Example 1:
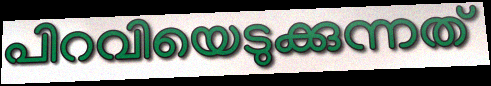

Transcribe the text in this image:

പിറവിയെടുക്കുന്നത്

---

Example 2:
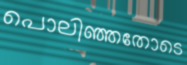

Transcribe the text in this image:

പൊലിഞ്ഞതോടെ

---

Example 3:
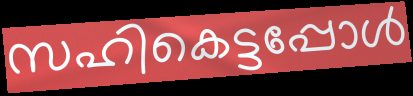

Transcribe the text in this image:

സഹികെട്ടപ്പോൾ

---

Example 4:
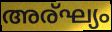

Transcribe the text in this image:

അര്ഘ്യം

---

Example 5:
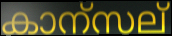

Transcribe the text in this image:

കാന്സല്